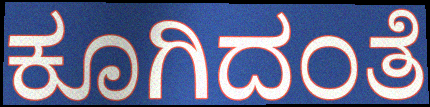
ಕೂಗಿದಂತೆ